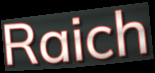
Raich